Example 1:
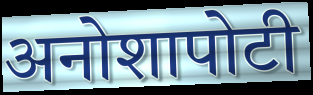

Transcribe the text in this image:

अनोशापोटी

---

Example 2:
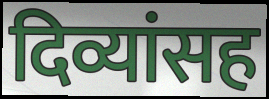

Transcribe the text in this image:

दिव्यांसह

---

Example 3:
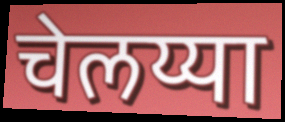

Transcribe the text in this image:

चेलय्या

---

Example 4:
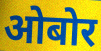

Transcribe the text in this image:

ओबोर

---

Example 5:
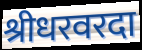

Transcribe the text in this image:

श्रीधरवरदा